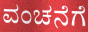
ವಂಚನೆಗೆ